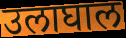
उलाघाल